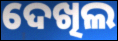
ଦେଖିଲ